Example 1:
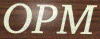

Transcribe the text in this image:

OPM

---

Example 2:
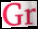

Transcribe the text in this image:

Gr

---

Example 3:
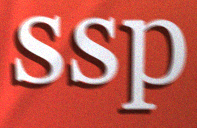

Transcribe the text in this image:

ssp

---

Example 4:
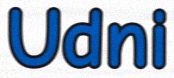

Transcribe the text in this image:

Udni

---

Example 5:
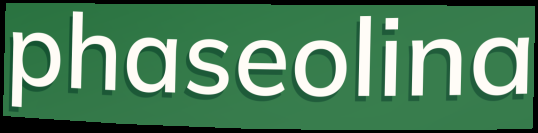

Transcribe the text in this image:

phaseolina